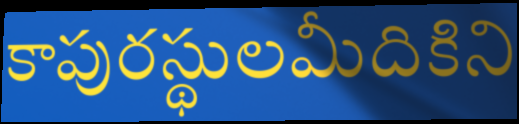
కాపురస్థులమీదికిని